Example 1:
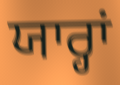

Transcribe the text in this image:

ਯਾਰ੍ਹਾਂ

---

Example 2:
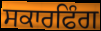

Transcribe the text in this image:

ਸਕਾਰਫਿੰਗ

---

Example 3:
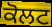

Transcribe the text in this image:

ਕੋਲਟ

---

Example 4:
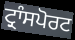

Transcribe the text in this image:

ਟ੍ਰਾੰਸਪੋਰਟ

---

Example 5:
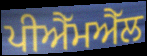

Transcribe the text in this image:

ਪੀਐੱਮਐੱਲ